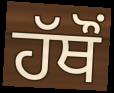
ਹੱਥੌਂ